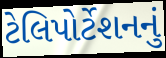
ટેલિપોર્ટેશનનું